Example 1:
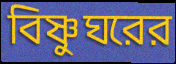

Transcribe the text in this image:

বিষ্ণুঘরের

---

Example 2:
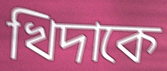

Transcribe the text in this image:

খিদাকে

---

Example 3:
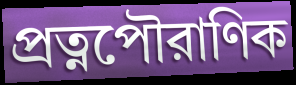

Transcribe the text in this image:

প্রত্নপৌরাণিক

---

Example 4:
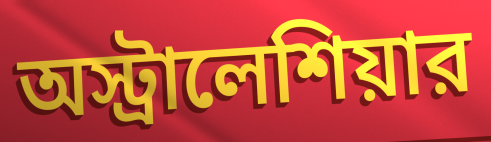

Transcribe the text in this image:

অস্ট্রালেশিয়ার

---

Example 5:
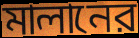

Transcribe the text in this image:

মালানের